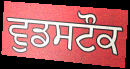
ਵੁਡਸਟੌਕ